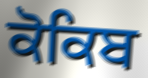
ਕੋਕਿਬ